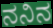
ನನಿನ